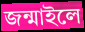
জন্মাইলে